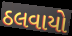
ઠલવાયો